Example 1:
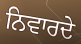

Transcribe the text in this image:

ਨਿਵਾਰਦੇ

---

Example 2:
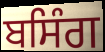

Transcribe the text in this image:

ਬਸਿੰਗ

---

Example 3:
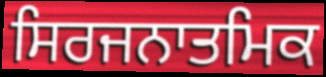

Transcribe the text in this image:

ਸਿਰਜਨਾਤਮਿਕ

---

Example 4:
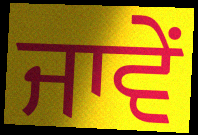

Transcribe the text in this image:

ਜਾਵੇਂ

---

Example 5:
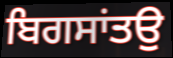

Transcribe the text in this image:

ਬਿਗਸਾਂਤਉ